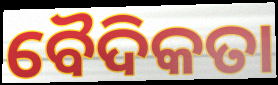
ବୈଦିକତା